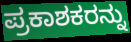
ಪ್ರಕಾಶಕರನ್ನು